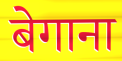
बेगाना